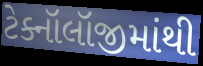
ટેક્નૉલૉજીમાંથી